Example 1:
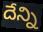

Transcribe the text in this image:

దేన్ని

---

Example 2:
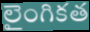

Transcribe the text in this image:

లైంగికత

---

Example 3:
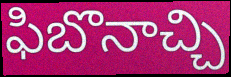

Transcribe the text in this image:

ఫిబొనాచ్చి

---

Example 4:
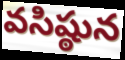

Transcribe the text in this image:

వసిష్ఠున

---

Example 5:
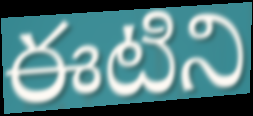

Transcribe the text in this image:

ఈటిని